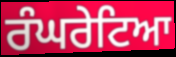
ਰੰਘਰੇਟਿਆ